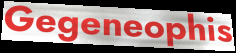
Gegeneophis